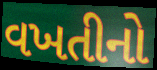
વખતીનો